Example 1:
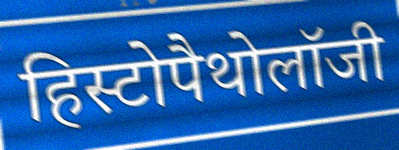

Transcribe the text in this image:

हिस्टोपैथोलॉजी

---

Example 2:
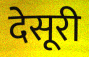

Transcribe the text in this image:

देसूरी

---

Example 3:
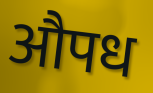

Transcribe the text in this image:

औपध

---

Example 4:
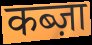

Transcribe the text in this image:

कब्ज़ा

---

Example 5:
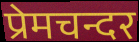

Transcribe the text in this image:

प्रेमचन्दर